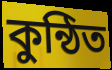
কুন্ঠিত